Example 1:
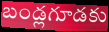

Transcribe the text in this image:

బండ్లగూడకు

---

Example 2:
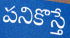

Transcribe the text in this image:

పనికొస్తే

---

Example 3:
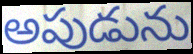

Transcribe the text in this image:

అపుడును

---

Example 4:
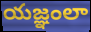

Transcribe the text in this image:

యజ్ఞంలా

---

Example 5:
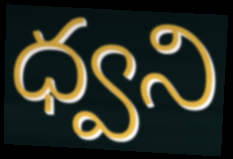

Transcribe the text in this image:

ధ్వని